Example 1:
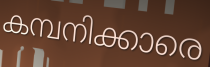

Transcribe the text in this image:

കമ്പനിക്കാരെ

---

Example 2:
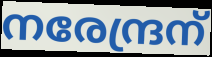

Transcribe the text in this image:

നരേന്ദ്രന്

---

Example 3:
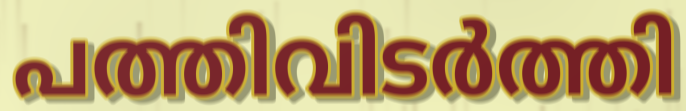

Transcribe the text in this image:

പത്തിവിടർത്തി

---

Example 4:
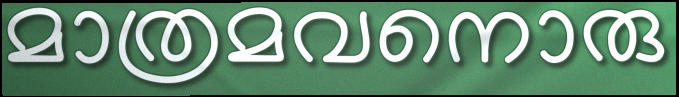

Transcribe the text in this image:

മാത്രമവനൊരു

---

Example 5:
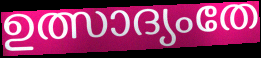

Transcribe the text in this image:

ഉത്സാദ്യംതേ